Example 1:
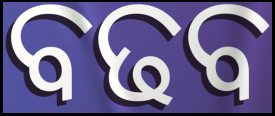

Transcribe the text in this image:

ବଢବ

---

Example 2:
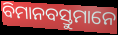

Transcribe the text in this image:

ବିମାନବସ୍ତୁମାନେ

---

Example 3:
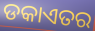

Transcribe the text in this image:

ଡକାଏତର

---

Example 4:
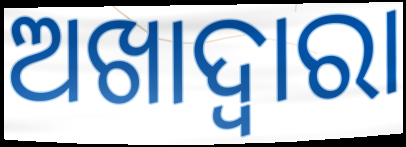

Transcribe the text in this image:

ଅଖାଦ୍ୱାରା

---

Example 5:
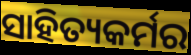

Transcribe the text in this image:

ସାହିତ୍ୟକର୍ମର